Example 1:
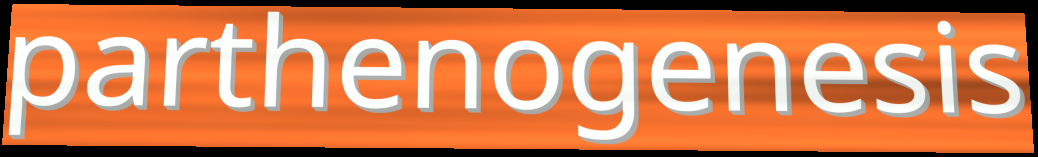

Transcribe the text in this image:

parthenogenesis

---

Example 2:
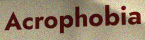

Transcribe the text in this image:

Acrophobia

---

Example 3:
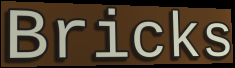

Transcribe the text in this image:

Bricks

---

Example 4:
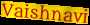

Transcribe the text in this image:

Vaishnavi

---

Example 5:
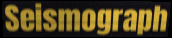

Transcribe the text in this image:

Seismograph